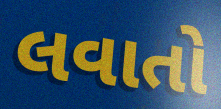
લવાતો